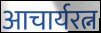
आचार्यरत्न